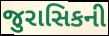
જુરાસિકની